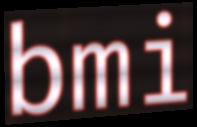
bmi